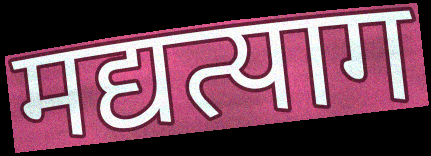
मद्यत्याग